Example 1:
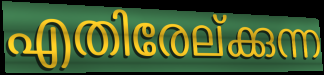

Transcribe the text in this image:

എതിരേല്ക്കുന്ന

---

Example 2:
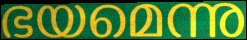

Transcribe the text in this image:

ഭയമെന്നു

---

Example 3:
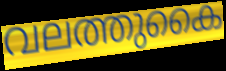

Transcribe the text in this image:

വലത്തുകൈ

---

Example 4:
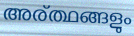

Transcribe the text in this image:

അര്ത്ഥങ്ങളും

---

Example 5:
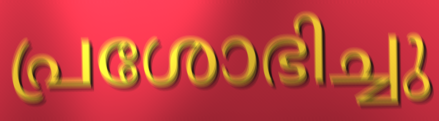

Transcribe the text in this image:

പ്രശോഭിച്ചു